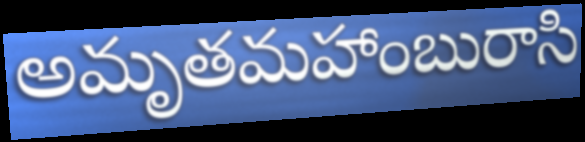
అమృతమహాంబురాసి